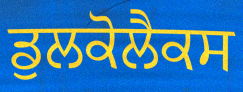
ਡੁਲਕੋਲੈਕਸ